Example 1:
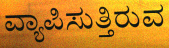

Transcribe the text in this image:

ವ್ಯಾಪಿಸುತ್ತಿರುವ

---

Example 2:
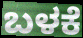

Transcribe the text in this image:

ಬಳಕೆ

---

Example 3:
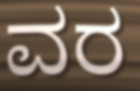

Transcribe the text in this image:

ವರ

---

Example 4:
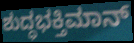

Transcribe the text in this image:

ಶುದ್ಧಭಕ್ತಿಮಾನ್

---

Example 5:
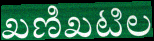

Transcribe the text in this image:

ಖಣಿಖಟಿಲ